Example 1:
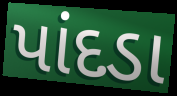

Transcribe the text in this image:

પાંદડા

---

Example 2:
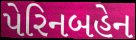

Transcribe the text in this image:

પેરિનબહેન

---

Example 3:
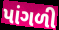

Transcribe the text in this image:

પાંગળી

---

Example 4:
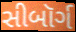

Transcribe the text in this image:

સીબૉર્ગ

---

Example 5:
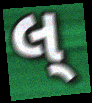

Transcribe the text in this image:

લ્